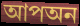
আপঅন